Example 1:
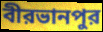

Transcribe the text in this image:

বীরভানপুর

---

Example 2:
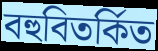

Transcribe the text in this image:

বহুবিতর্কিত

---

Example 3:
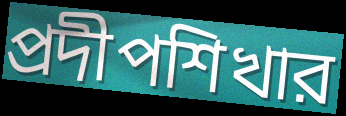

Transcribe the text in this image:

প্রদীপশিখার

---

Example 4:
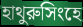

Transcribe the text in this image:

হাথুরুসিংহে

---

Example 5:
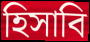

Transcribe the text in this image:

হিসাবি